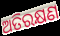
ଅତିରକ୍ଷଣ